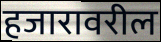
हजारावरील